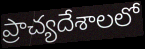
ప్రాచ్యదేశాలలో